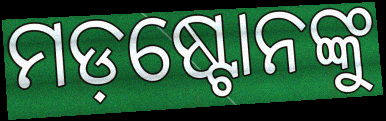
ମଡ଼ଷ୍ଟୋନଙ୍କୁ